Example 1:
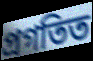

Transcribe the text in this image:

প্ৰগতিত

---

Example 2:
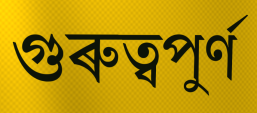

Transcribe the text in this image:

গুৰুত্বপুৰ্ণ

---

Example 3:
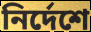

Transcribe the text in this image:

নিৰ্দেশে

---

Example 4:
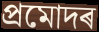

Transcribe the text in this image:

প্ৰমোদৰ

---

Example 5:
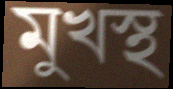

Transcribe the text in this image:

মুখস্থ